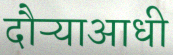
दौऱ्याआधी